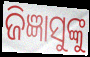
ଜିଜ୍ଞାସୁଙ୍କୁ